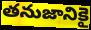
తనుజానికై